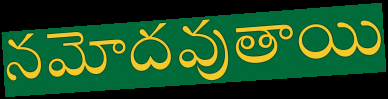
నమోదవుతాయి